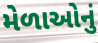
મેળાઓનું